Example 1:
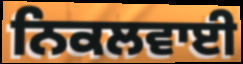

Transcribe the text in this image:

ਨਿਕਲਵਾਈ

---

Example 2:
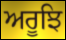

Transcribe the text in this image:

ਅਰੂਝਿ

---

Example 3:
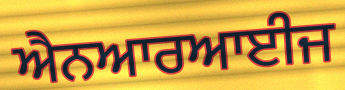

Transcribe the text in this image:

ਐਨਆਰਆਈਜ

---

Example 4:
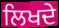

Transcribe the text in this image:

ਲਿਖਦੇ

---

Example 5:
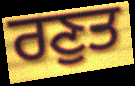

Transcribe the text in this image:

ਰਣੁਤ